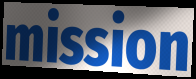
mission